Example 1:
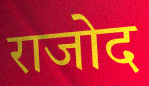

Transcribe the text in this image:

राजोद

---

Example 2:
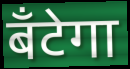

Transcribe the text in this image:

बँटेगा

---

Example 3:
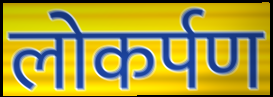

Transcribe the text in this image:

लोकर्पण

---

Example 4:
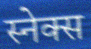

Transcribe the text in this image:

स्नेक्स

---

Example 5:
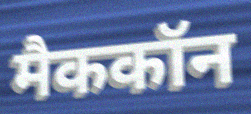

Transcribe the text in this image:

मैककॉन